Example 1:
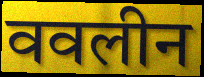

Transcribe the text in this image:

ववलीन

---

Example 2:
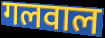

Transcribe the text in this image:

गलवाल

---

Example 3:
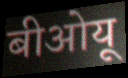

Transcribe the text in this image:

बीओयू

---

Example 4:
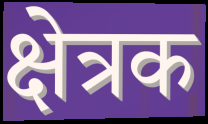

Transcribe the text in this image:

क्षेत्रक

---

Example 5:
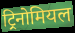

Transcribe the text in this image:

ट्रिनोमियल